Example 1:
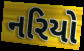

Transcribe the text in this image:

નરિયો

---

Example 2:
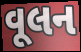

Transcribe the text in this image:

વૂલન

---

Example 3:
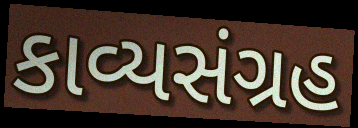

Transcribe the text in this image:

કાવ્યસંગ્રહ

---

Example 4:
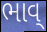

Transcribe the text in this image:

ભાવ્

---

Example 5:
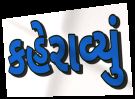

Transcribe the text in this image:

કહેરાવ્યું